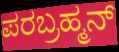
ಪರಬ್ರಹ್ಮನ್